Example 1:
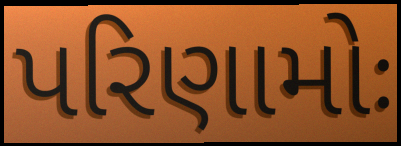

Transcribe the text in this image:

પરિણામોઃ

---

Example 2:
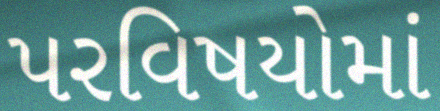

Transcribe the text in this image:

પરવિષયોમાં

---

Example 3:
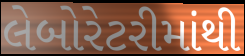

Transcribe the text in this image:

લેબોરેટરીમાંથી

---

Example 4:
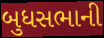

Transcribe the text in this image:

બુધસભાની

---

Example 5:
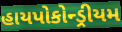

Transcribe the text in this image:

હાયપોકોન્ડ્રીયમ